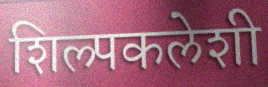
शिल्पकलेशी